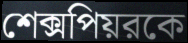
শেক্সপিয়রকে